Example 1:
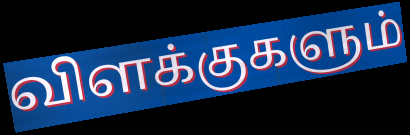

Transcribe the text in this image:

விளக்குகளும்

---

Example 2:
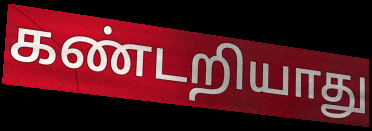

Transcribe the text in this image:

கண்டறியாது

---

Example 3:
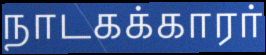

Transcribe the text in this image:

நாடகக்காரர்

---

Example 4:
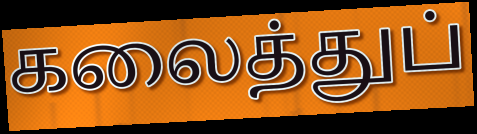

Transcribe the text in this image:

கலைத்துப்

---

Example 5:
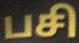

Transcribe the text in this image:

பசி